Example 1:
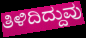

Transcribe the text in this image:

ತಿಳಿದಿದ್ದುವು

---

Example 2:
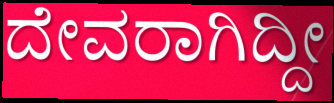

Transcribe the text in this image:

ದೇವರಾಗಿದ್ದೀ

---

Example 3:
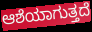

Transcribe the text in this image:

ಆಶೆಯಾಗುತ್ತದೆ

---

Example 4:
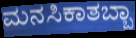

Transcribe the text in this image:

ಮನಸಿಕಾತಬ್ಬಾ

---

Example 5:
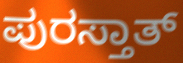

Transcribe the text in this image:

ಪುರಸ್ತಾತ್